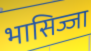
भासिज्जा